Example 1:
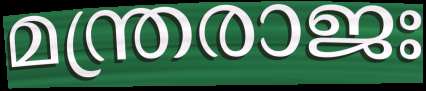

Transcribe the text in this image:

മന്ത്രരാജഃ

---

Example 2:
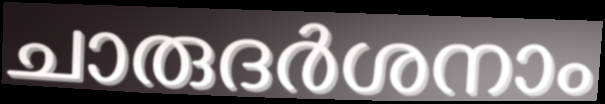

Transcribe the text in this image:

ചാരുദർശനാം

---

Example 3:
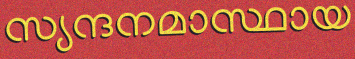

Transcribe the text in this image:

സ്യന്ദനമാസ്ഥായ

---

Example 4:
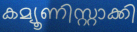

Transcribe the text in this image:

കമ്യൂണിസ്റ്റാക്കി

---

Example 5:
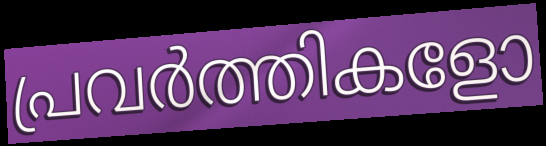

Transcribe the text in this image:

പ്രവർത്തികളോ